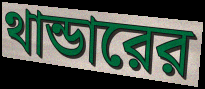
থান্ডারের